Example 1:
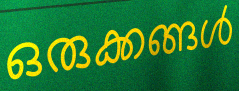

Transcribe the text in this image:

ഒരുക്കങ്ങൾ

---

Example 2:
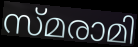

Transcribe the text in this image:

സ്മരാമി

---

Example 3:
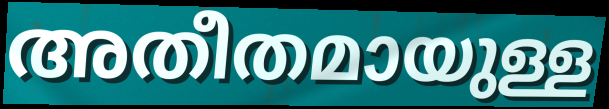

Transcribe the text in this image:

അതീതമായുള്ള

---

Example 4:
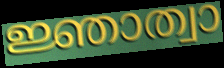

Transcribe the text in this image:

ജ്ഞാത്വാ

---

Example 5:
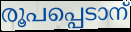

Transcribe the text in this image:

രൂപപ്പെടാന്